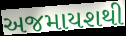
અજમાયશથી